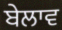
ਬੇਲਾਵ